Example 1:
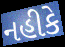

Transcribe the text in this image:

નહીકે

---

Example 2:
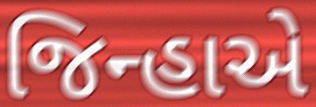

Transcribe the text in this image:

જિન્હાએ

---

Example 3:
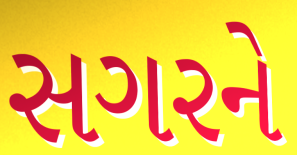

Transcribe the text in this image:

સગરને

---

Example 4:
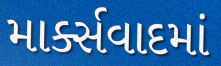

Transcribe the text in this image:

માર્ક્સવાદમાં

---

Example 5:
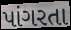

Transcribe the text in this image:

પાંગરતા